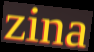
zina